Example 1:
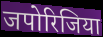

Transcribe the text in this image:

जपोरिजिया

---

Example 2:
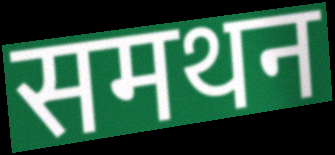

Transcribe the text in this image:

समथन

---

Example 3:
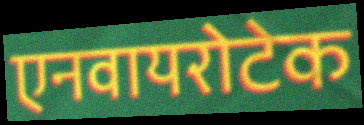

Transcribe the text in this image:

एनवायरोटेक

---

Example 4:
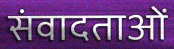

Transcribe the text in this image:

संवादताओं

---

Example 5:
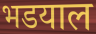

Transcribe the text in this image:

भडयाल